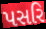
પસરિ